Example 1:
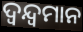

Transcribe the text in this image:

ଦ୍ଵନ୍ଦ୍ଵମାନ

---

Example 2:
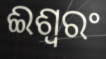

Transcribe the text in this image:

ଈଶ୍ଵରଂ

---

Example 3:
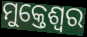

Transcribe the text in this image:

ମୁକ୍ତେଶ୍ଵର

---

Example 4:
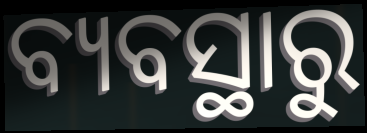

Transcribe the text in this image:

ବ୍ୟବସ୍ଥାରୁ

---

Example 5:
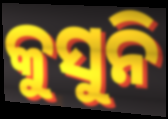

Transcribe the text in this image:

କୁସୁନି